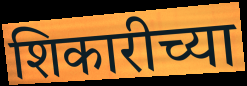
शिकारीच्या